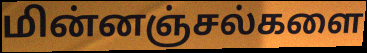
மின்னஞ்சல்களை